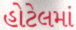
હોટેલમાં